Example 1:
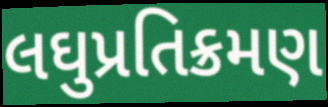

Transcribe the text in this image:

લઘુપ્રતિક્રમણ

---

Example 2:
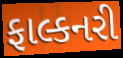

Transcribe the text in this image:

ફાલ્કનરી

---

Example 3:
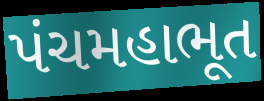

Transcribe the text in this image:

પંચમહાભૂત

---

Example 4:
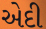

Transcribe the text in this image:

એદી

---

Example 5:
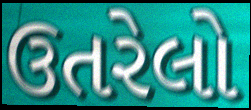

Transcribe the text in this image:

ઉતરેલો